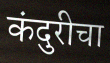
कंदुरीचा